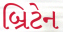
બ્રિટેન